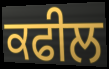
ਕਫੀਲ